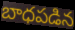
బాధపడిన